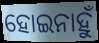
ହୋଇନାହୁଁ